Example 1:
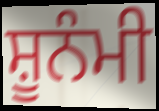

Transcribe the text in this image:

ਸ਼ੂਨੰਮੀ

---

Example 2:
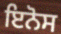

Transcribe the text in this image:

ਇਨੋਸ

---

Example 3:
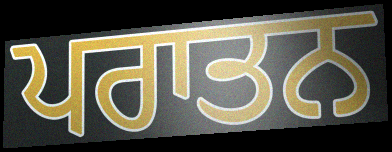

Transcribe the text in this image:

ਪਰਾਤਨ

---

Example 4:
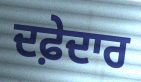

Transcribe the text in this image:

ਦਫ਼ੇਦਾਰ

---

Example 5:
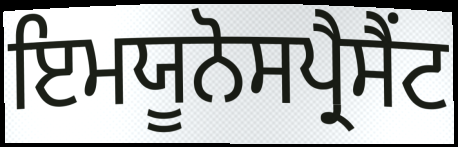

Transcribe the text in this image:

ਇਮਯੂਨੋਸਪ੍ਰੈਸੈਂਟ